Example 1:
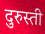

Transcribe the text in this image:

दुरुस्ती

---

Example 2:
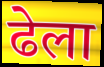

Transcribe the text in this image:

ढेला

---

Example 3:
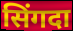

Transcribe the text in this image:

सिंगदा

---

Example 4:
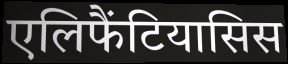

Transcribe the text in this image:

एलिफैंटियासिस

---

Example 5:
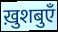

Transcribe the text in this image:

ख़ुशबुएँ